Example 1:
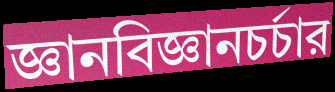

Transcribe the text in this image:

জ্ঞানবিজ্ঞানচর্চার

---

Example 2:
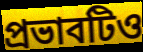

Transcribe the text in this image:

প্রভাবটিও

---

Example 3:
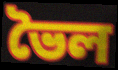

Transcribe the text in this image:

ভৈল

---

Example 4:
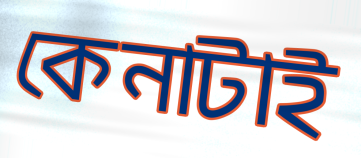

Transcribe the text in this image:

কেনাটাই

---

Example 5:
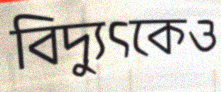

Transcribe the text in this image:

বিদ্যুৎকেও